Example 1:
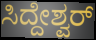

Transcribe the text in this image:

ಸಿದ್ದೇಶ್ವರ್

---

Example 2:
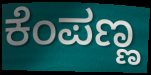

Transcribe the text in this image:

ಕೆಂಪಣ್ಣ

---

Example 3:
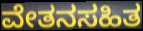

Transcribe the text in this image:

ವೇತನಸಹಿತ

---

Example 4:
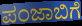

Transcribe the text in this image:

ಪಂಜಾಬಿಗೆ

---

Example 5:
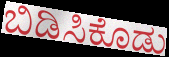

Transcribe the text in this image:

ಬಿಡಿಸಿಕೊಡು